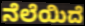
ನೆಲೆಯಿದೆ